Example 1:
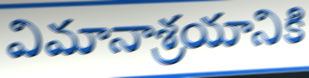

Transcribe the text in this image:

విమానాశ్రయానికి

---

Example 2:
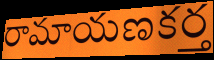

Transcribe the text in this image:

రామాయణకర్త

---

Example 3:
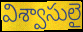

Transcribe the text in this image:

విశ్వాసులై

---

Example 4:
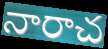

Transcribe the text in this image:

నారాచ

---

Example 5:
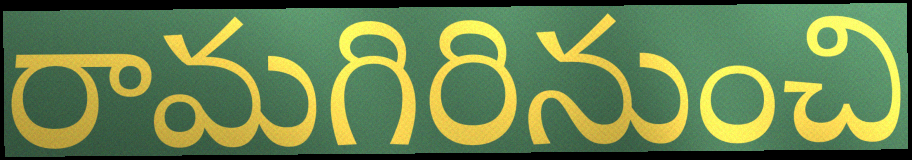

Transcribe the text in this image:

రామగిరినుంచి